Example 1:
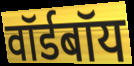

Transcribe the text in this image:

वॉर्डबॉय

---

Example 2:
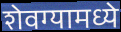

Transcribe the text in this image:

शेवग्यामध्ये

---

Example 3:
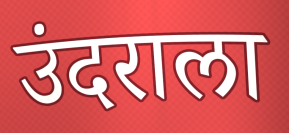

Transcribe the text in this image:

उंदराला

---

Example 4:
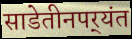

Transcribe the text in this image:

साडेतीनपर्यंत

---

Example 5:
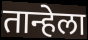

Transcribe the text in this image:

तान्हेला